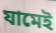
যামেই